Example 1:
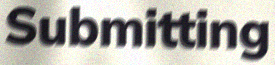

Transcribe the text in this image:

Submitting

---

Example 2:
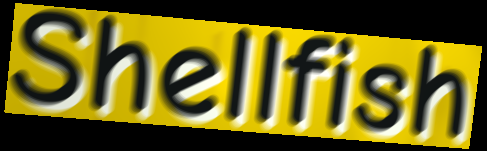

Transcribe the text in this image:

Shellfish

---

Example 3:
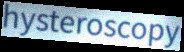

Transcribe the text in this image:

hysteroscopy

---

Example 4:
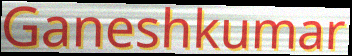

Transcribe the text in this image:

Ganeshkumar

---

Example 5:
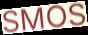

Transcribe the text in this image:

SMOS